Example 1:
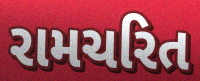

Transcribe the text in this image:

રામચરિત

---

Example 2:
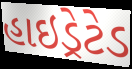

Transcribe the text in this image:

હાઇડ્રેટેડ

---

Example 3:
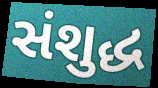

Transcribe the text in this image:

સંશુદ્ધ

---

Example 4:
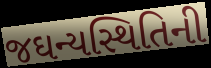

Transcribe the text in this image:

જઘન્યસ્થિતિની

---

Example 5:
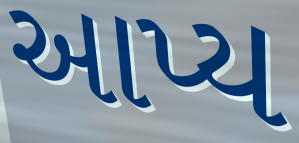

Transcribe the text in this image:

આપ્ય